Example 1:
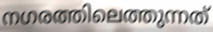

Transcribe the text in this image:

നഗരത്തിലെത്തുന്നത്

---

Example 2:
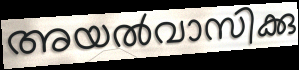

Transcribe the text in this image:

അയൽവാസിക്കു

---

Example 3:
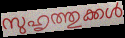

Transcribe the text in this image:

സുഹൃത്തുക്കൾ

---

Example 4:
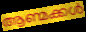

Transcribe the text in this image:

ആണ്മക്കൾ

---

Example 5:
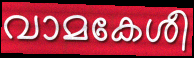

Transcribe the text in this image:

വാമകേശീ